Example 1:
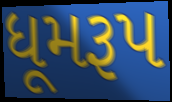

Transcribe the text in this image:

ધૂમરૂપ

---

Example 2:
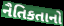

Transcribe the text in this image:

નૈતિકતાનો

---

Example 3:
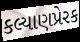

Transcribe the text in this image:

કલ્યાણપ્રેરક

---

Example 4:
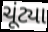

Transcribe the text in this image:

ચૂંટ્યા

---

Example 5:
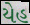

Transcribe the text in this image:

યેહ